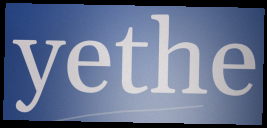
yethe